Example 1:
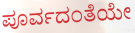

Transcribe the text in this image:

ಪೂರ್ವದಂತೆಯೇ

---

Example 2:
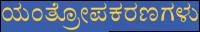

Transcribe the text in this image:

ಯಂತ್ರೋಪಕರಣಗಳು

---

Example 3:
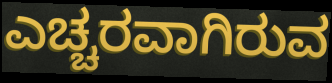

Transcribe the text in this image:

ಎಚ್ಚರವಾಗಿರುವ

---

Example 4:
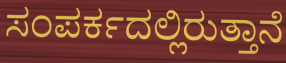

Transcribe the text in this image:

ಸಂಪರ್ಕದಲ್ಲಿರುತ್ತಾನೆ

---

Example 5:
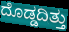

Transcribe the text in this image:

ದೊಡ್ಡದಿತ್ತು